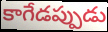
కాగేడప్పుడు